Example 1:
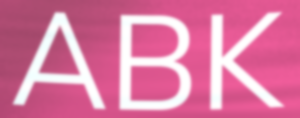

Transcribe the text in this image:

ABK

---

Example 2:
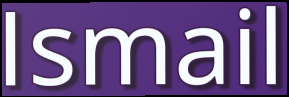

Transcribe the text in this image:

Ismail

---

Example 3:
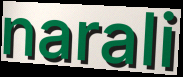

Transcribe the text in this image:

narali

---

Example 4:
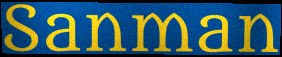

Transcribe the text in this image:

Sanman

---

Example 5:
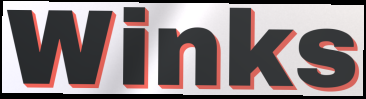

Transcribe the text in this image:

Winks